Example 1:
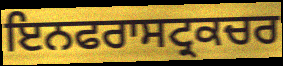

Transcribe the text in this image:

ਇਨਫਰਾਸਟ੍ਰਕਚਰ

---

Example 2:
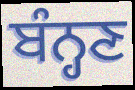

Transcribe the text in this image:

ਬੰਨ੍ਹਣ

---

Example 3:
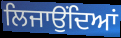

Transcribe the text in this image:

ਲਿਜਾਉਂਦਿਆਂ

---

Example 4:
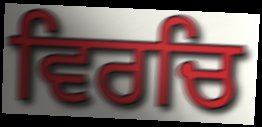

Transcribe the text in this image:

ਵਿਰਚਿ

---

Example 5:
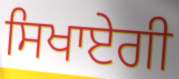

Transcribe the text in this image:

ਸਿਖਾਏਗੀ